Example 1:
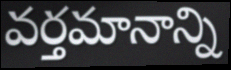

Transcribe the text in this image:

వర్తమానాన్ని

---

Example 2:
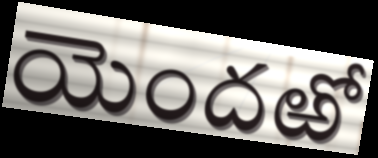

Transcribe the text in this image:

యెందఱో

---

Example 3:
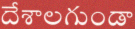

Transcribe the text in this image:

దేశాలగుండా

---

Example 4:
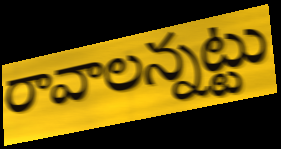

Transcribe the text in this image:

రావాలన్నట్టు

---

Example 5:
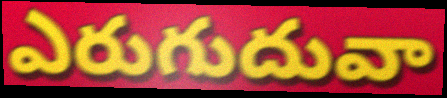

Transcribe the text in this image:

ఎరుగుదువా